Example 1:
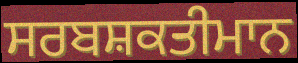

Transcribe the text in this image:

ਸਰਬਸ਼ਕਤੀਮਾਨ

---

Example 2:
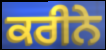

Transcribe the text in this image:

ਕਰੀਨੇ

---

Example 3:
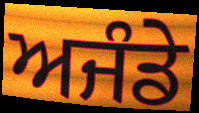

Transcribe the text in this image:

ਅਜੰਡੇ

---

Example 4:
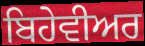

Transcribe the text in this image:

ਬਿਹੇਵੀਅਰ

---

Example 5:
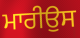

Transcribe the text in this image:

ਮਾਰੀਉਸ